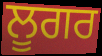
ਲੂਗਰ